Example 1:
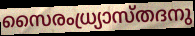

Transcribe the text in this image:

സൈരംധ്ര്യാസ്തദനു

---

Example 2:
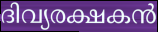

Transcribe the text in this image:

ദിവ്യരക്ഷകൻ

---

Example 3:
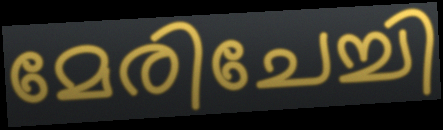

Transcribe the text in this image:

മേരിചേച്ചി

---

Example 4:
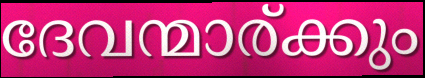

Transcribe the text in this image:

ദേവന്മാര്ക്കും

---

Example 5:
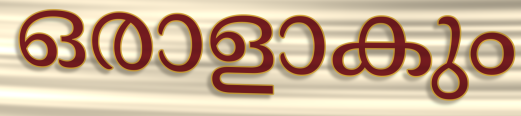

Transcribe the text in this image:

ഒരാളാകും